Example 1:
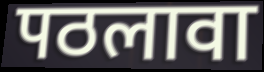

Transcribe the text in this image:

पठलावा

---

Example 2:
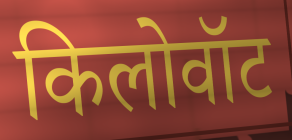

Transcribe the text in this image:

किलोवॉट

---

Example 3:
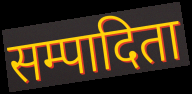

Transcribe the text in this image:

सम्पादिता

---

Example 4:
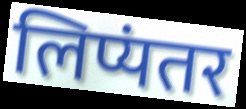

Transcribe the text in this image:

लिप्यंतर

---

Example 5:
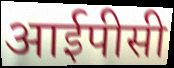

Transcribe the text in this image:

आईपीसी